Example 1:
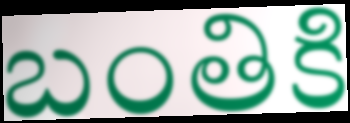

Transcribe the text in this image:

బంతికి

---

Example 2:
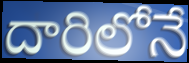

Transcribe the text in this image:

దారిలోనే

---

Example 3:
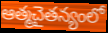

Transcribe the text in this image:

ఆత్మచైతన్యంలో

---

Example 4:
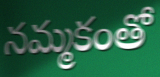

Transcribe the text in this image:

నమ్మకంతో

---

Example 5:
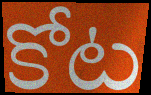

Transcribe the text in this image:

కోట